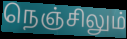
நெஞ்சிலும்